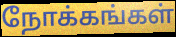
நோக்கங்கள்